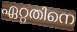
ഏറ്റതിനെ